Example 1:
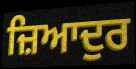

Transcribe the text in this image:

ਜ਼ਿਆਦੁਰ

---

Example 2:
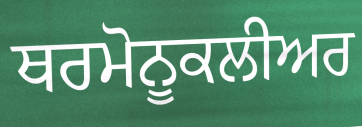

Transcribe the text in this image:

ਥਰਮੋਨੂਕਲੀਅਰ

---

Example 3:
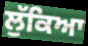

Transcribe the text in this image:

ਲੁੱਕਿਆ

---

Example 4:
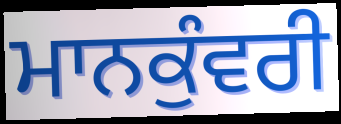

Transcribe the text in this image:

ਮਾਨਕੁੰਵਰੀ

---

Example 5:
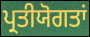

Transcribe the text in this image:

ਪ੍ਰਤੀਯੋਗਤਾਂ